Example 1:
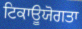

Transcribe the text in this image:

ਟਿਕਾਊਯੋਗਤਾ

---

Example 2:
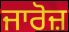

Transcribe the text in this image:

ਜਾਰੋਜ਼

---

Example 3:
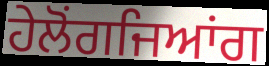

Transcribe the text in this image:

ਹੇਲੋਂਗਜਿਆਂਗ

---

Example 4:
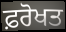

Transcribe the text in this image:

ਫ਼ਰੋਖਤ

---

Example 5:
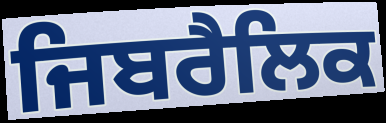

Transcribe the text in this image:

ਜਿਬਰੈਲਿਕ